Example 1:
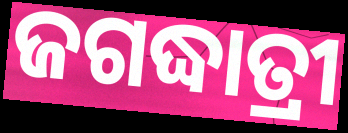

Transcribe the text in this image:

ଜଗଦ୍ଧାତ୍ରୀ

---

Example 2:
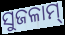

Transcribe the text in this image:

ସୁଜଳାମ୍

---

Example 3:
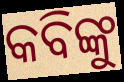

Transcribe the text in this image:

କବିଙ୍କୁ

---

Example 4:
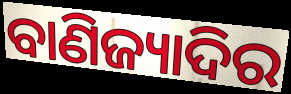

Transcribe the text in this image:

ବାଣିଜ୍ୟାଦିର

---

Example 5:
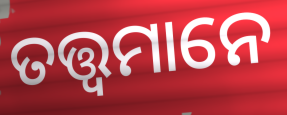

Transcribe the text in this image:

ତତ୍ତ୍ବମାନେ